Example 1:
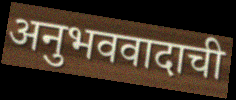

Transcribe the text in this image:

अनुभववादाची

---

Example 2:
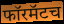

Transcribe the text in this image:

फॉरमॅटच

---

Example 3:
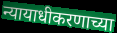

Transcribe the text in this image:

न्यायाधीकरणाच्या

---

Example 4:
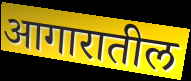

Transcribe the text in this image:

आगारातील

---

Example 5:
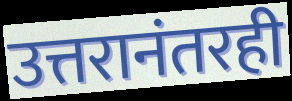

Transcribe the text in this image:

उत्तरानंतरही